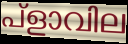
പ്ളാവില